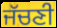
ਜੱਚਣੀ